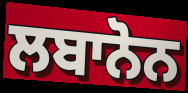
ਲਬਾਨੋਨ